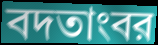
বদতাংবর